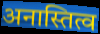
अनास्तित्व